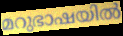
മറുഭാഷയിൽ